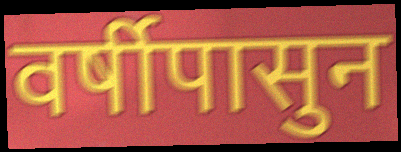
वर्षीपासुन